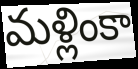
మళ్లింకా